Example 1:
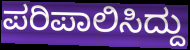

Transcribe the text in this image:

ಪರಿಪಾಲಿಸಿದ್ದು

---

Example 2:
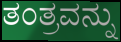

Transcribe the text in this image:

ತಂತ್ರವನ್ನು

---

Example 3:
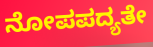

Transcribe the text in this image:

ನೋಪಪದ್ಯತೇ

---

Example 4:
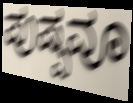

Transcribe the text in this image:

ಪುಷ್ಪವೂ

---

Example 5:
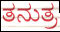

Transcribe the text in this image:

ತನುತ್ರ